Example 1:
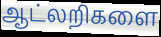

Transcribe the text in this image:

ஆட்லறிகளை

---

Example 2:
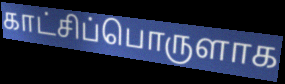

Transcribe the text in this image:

காட்சிப்பொருளாக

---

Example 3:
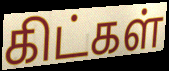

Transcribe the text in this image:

கிட்கள்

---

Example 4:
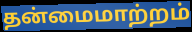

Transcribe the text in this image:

தன்மைமாற்றம்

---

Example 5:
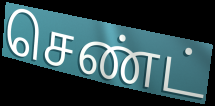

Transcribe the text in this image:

செண்ட்